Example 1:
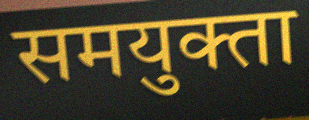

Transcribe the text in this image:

समयुक्ता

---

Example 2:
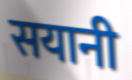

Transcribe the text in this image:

सयानी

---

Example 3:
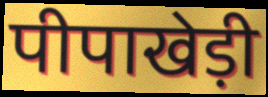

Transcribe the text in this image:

पीपाखेड़ी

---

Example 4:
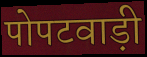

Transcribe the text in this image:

पोपटवाड़ी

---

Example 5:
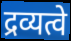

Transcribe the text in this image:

द्रव्यत्वे